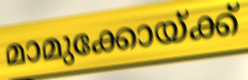
മാമുക്കോയ്ക്ക്